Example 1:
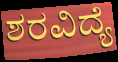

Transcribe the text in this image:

ಶರವಿದ್ಯೆ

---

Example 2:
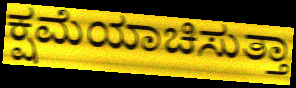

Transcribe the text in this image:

ಕ್ಷಮೆಯಾಚಿಸುತ್ತಾ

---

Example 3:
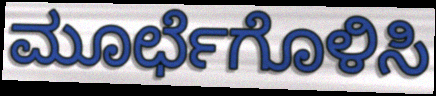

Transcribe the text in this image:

ಮೂರ್ಛೆಗೊಳಿಸಿ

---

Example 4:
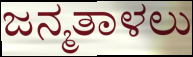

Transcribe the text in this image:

ಜನ್ಮತಾಳಲು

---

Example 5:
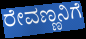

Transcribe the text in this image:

ರೇವಣ್ಣನಿಗೆ